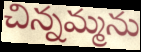
చిన్నమ్మను